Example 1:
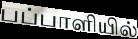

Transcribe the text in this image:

பப்பாளியில்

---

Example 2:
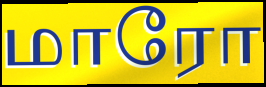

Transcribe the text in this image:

மாரோ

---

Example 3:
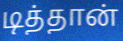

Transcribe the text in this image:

டித்தான்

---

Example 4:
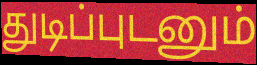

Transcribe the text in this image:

துடிப்புடனும்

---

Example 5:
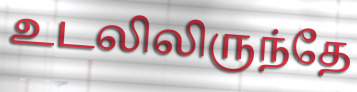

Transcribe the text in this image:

உடலிலிருந்தே